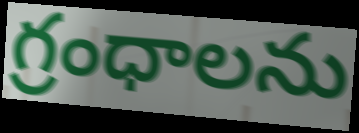
గ్రంధాలను